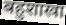
बहुशाखा